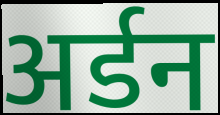
अर्डन